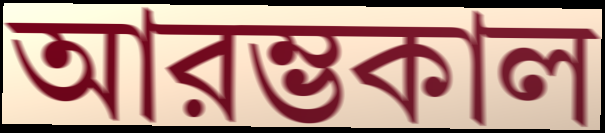
আরম্ভকাল